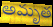
అమృత